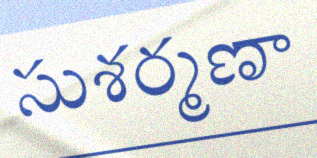
సుశర్మణా